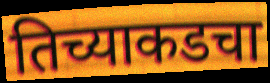
तिच्याकडचा